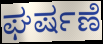
ಘರ್ಷಣೆ